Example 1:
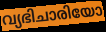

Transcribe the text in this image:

വ്യഭിചാരിയോ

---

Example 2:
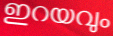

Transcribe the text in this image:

ഇറയവും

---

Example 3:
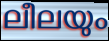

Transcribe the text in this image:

ലീലയും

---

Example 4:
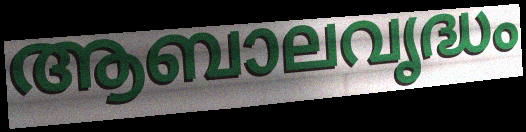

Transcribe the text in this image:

ആബാലവൃദ്ധം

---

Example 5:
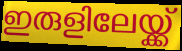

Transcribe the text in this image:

ഇരുളിലേയ്ക്ക്